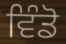
ਵਿੰਡੋ